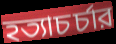
হত্যাচর্চার